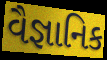
વૈજ્ઞાનિક